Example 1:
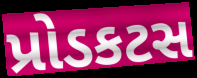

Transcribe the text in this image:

પ્રોડકટસ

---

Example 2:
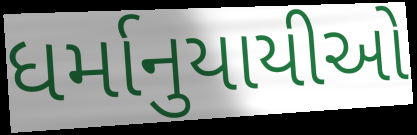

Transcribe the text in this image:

ધર્માનુયાયીઓ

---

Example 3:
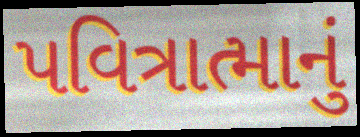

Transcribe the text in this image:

પવિત્રાત્માનું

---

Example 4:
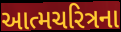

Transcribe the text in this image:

આત્મચરિત્રના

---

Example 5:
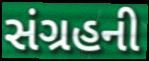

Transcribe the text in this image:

સંગ્રહની